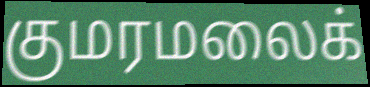
குமரமலைக்